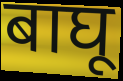
बाघू